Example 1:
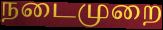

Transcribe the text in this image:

நடைமுறை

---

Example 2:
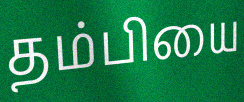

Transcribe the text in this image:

தம்பியை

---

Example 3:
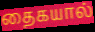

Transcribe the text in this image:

தைகயால்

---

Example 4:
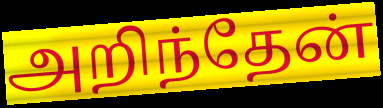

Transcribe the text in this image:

அறிந்தேன்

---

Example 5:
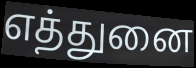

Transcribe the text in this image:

எத்துனை